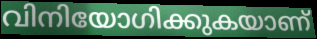
വിനിയോഗിക്കുകയാണ്